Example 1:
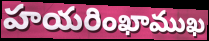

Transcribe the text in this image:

హయరింఖాముఖ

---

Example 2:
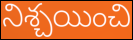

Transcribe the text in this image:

నిశ్చయించి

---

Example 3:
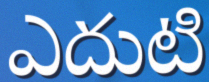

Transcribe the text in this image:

ఎదుటి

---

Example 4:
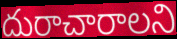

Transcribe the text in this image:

దురాచారాలని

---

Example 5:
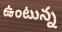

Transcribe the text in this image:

ఉంటున్న